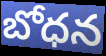
బోధన